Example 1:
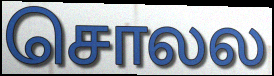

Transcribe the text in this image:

சொலல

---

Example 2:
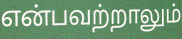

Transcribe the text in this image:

என்பவற்றாலும்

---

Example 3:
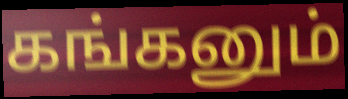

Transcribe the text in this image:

கங்கனும்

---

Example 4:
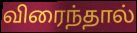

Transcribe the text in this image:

விரைந்தால்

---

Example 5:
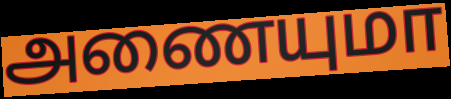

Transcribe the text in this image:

அணையுமா